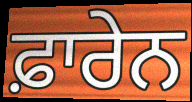
ਫ਼ਾਰੇਨ